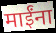
माईंना